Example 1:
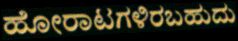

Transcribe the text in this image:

ಹೋರಾಟಗಳಿರಬಹುದು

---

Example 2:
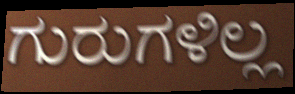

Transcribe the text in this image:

ಗುರುಗಳಿಲ್ಲ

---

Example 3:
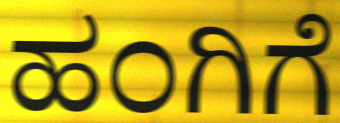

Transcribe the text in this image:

ಹಂಗಿಗೆ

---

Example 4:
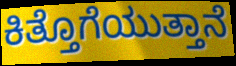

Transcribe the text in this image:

ಕಿತ್ತೊಗೆಯುತ್ತಾನೆ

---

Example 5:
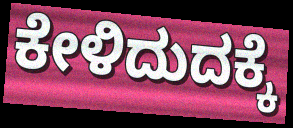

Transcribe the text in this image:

ಕೇಳಿದುದಕ್ಕೆ